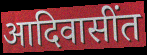
आदिवासींत